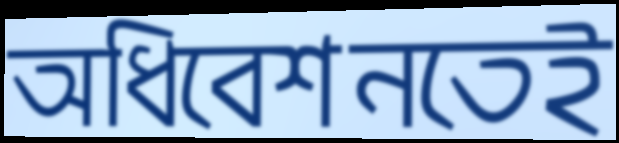
অধিবেশনতেই